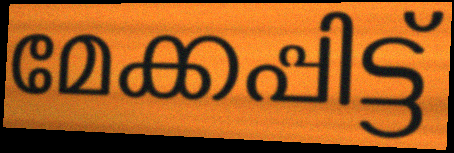
മേക്കപ്പിട്ട്